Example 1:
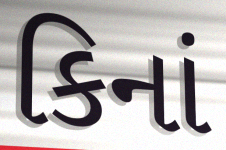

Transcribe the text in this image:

કિનાં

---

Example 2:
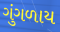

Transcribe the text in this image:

ગુંગળાય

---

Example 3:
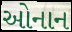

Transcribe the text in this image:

ઓનાન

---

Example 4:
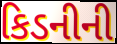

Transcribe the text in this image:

કિડનીની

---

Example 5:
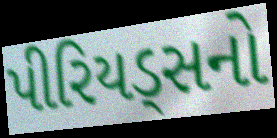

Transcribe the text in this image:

પીરિયડ્સનો